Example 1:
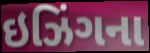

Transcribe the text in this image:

ઇઝિંગના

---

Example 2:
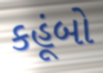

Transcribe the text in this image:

કહૂંબો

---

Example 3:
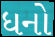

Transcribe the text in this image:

ધનો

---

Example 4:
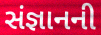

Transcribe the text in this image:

સંજ્ઞાનની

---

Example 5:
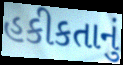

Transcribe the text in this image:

હકીકતાનું